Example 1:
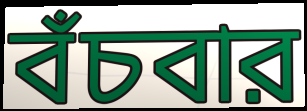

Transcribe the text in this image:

বঁচবার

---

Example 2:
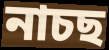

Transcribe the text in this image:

নাচছ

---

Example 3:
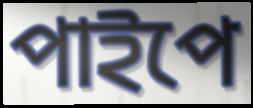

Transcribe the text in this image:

পাইপে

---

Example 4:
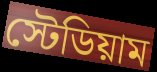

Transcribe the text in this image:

স্টেডিয়াম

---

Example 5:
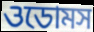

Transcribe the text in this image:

ওডোমস